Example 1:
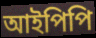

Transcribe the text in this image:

আইপিপি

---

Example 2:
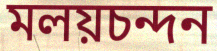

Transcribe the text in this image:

মলয়চন্দন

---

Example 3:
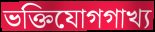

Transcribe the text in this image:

ভক্তিযোগগাখ্য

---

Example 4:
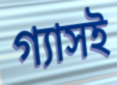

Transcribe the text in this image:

গ্যাসই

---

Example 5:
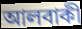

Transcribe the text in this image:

আলবাকী